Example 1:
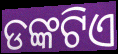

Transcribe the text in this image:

ଡଙ୍କଟିଏ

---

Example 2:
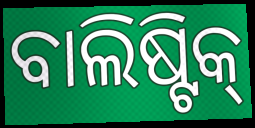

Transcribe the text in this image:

ବାଲିଷ୍ଟିକ୍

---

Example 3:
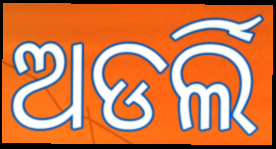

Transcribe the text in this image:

ଅଡର୍ଲି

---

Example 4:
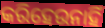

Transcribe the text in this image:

କରିହେଉନାହିଁ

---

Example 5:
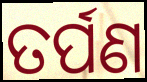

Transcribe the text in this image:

ତର୍ପଣ